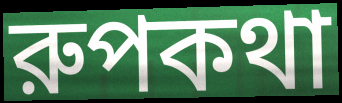
রুপকথা